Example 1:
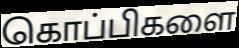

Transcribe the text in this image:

கொப்பிகளை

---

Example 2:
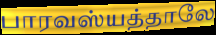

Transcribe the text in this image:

பாரவஸ்யத்தாலே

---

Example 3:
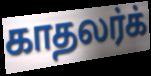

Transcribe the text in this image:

காதலர்க்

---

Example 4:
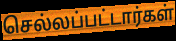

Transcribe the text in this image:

செல்லப்பட்டார்கள்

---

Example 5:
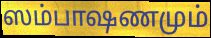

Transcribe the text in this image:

ஸம்பாஷணமும்